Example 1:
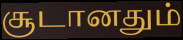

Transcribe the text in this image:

சூடானதும்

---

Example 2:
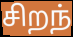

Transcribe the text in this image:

சிறந்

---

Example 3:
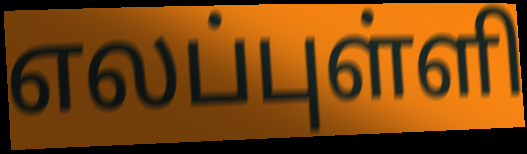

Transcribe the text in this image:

எலப்புள்ளி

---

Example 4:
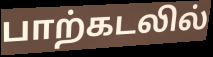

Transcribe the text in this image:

பாற்கடலில்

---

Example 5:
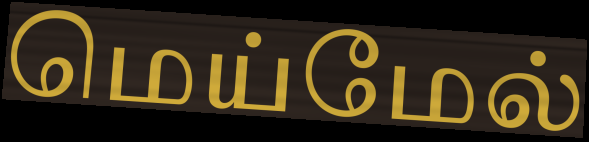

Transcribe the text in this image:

மெய்மேல்